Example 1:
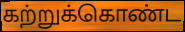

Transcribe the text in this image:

கற்றுக்கொண்ட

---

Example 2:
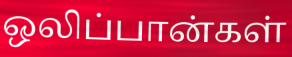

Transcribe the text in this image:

ஒலிப்பான்கள்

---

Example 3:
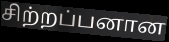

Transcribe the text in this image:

சிற்றப்பனான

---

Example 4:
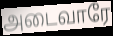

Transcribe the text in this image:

அடைவாரே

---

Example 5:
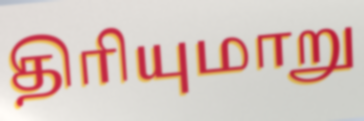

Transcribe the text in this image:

திரியுமாறு